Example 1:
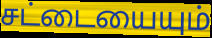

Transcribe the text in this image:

சட்டையையும்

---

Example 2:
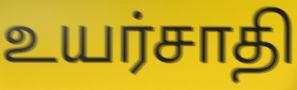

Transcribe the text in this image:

உயர்சாதி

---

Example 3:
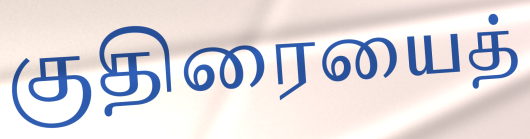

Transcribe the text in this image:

குதிரையைத்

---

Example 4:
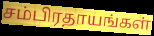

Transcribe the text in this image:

சம்பிரதாயங்கள்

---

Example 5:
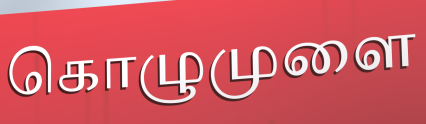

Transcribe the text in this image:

கொழுமுளை